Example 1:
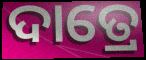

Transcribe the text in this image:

ଦାତ୍ରେ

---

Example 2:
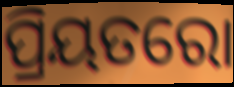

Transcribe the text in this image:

ପ୍ରିୟତରୋ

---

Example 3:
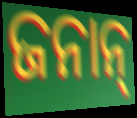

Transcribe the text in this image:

ଜନାନ୍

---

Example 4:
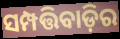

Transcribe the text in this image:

ସମ୍ପତ୍ତିବାଡ଼ିର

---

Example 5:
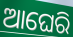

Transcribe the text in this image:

ଆଘେରି